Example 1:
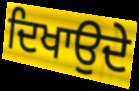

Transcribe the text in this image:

ਦਿਖਾਉਦੇ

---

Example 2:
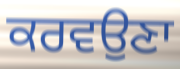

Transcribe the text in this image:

ਕਰਵਉਣਾ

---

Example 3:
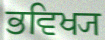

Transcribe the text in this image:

ਭਵਿਖ੍ਯ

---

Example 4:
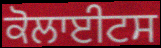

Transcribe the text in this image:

ਕੋਲਾਈਟਸ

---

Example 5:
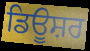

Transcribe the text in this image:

ਡਿਊਸ਼ਰ